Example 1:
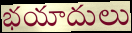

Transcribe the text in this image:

భయాదులు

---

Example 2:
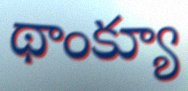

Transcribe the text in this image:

థాంక్యూ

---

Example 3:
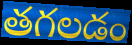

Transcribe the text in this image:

తగలడం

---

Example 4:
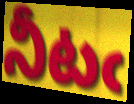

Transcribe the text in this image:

నీటఁ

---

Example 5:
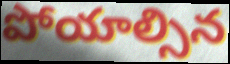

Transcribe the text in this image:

పోయాల్సిన